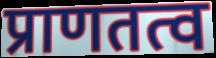
प्राणतत्व